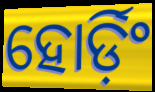
ହୋର୍ଡ଼ିଂ